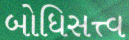
બોધિસત્ત્વ